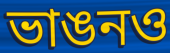
ভাঙনও